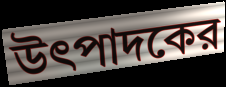
উৎপাদকের